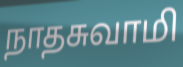
நாதசுவாமி